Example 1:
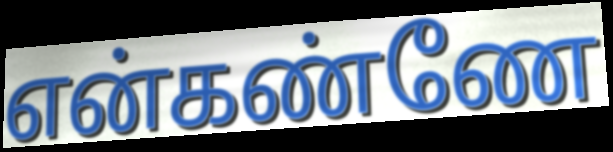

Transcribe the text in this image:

என்கண்ணே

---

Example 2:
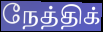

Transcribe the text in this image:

நேத்திக்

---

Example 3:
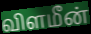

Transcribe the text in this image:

விளமீன்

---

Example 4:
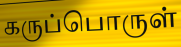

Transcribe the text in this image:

கருப்பொருள்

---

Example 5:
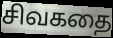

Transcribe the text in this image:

சிவகதை